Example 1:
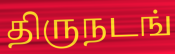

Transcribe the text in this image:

திருநடங்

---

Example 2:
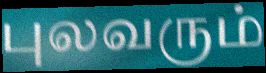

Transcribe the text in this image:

புலவரும்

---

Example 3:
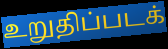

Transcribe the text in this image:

உறுதிப்படக்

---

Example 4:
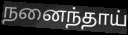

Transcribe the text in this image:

நனைந்தாய்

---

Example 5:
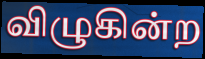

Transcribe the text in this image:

விழுகின்ற